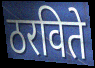
ठरविते